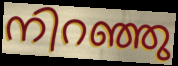
നിറഞ്ഞു